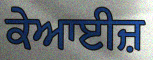
ਕੇਆਈਜ਼